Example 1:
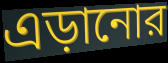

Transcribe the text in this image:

এড়ানোর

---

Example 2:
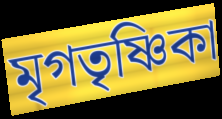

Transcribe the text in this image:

মৃগতৃষ্ণিকা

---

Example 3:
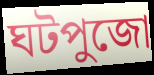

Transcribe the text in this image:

ঘটপুজো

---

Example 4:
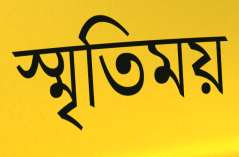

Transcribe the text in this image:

স্মৃতিময়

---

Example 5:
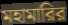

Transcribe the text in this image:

মহামারির